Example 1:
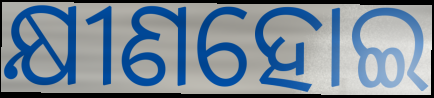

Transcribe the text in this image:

କ୍ଷୀଣହୋଇ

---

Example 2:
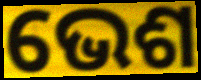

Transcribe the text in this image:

ଭେଶ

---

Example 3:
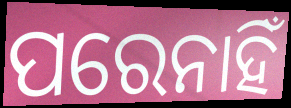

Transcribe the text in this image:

ପରେନାହିଁ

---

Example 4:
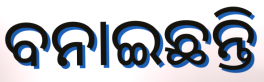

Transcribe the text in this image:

ବନାଇଛନ୍ତି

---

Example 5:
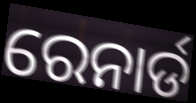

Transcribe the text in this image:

ରେନାର୍ଡ